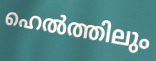
ഹെൽത്തിലും